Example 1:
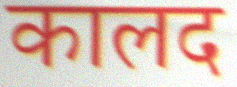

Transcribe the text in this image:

कालद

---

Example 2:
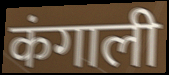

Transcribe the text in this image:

कंगाली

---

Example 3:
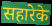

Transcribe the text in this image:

सहारेके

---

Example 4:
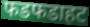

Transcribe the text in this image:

फडफडाहट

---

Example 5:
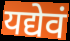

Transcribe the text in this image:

यद्येवं